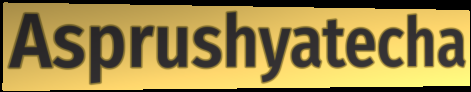
Asprushyatecha